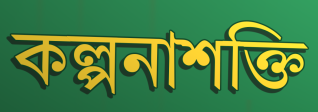
কল্পনাশক্তি